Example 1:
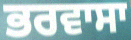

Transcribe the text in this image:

ਭਰਵਾਸਾ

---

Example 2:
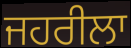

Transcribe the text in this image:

ਜਹਰੀਲਾ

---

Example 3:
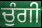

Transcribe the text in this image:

ਚੁੰਗੀ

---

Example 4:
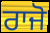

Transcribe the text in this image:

ਰਾਜੋ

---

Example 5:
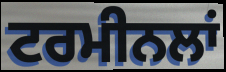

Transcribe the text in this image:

ਟਰਮੀਨਲਾਂ